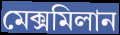
মেক্সমিলান